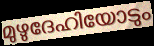
മുഴുദേഹിയോടും